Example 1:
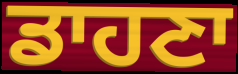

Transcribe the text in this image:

ਡਾਹਣਾ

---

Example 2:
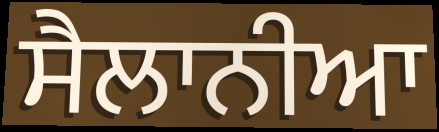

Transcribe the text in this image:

ਸੈਲਾਨੀਆ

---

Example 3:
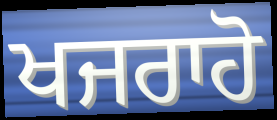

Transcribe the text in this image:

ਖਜਰਾਹੋ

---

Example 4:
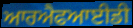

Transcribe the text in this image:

ਆਰਐਫਆਈਡੀ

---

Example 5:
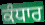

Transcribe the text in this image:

ਕੰਧਾਰ